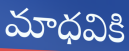
మాధవికి